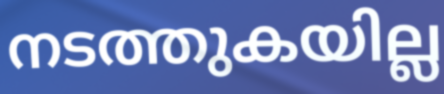
നടത്തുകയില്ല